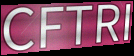
CFTRI